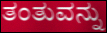
ತಂತುವನ್ನು